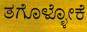
ತಗೊಳ್ಳೋಕೆ